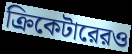
ক্রিকেটারেরও